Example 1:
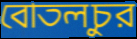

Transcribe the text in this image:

বোতলচুর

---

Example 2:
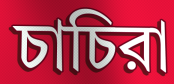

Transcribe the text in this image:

চাচিরা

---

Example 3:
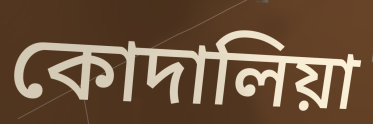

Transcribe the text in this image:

কোদালিয়া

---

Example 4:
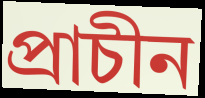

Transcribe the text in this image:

প্রাচীন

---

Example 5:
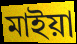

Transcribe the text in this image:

মাইয়া